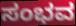
ಸಂಭವ